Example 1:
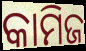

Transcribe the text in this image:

କାମିଜ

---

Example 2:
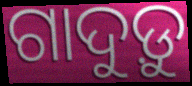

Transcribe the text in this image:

ଗାଦୁଡ଼ୁ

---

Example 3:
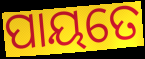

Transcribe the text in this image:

ପାୟତେ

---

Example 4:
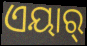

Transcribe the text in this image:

ଏୟାର୍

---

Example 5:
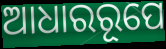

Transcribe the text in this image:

ଆଧାରରୂପେ